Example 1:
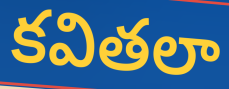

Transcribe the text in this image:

కవితలా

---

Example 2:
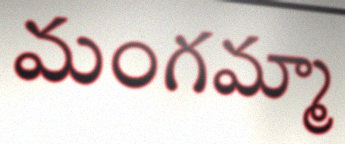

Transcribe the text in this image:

మంగమ్మా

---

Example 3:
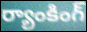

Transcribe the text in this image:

ర్యాంకింగ్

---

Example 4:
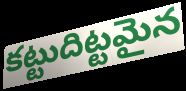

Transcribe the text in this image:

కట్టుదిట్టమైన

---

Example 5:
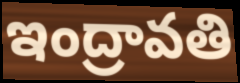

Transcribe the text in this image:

ఇంద్రావతి